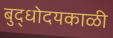
बुद्धोदयकाळी